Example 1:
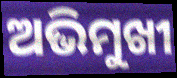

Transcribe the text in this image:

ଅଭିମୁଖୀ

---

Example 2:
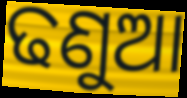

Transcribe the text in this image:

ଢଣୁଆ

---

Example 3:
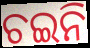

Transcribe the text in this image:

ଚଇନି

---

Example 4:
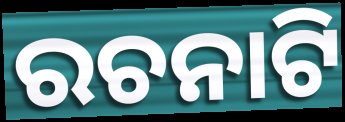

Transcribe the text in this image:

ରଚନାଟି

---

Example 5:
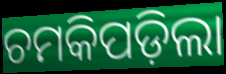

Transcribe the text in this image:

ଚମକିପଡ଼ିଲା